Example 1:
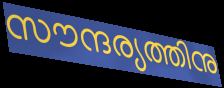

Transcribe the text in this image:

സൗന്ദര്യത്തിനു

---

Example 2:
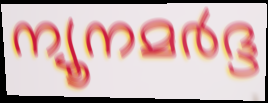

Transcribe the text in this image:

ന്യൂനമർദ്ദ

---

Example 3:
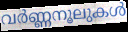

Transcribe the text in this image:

വർണ്ണനൂലുകൾ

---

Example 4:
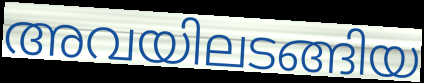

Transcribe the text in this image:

അവയിലടങ്ങിയ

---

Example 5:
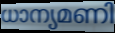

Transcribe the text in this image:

ധാന്യമണി